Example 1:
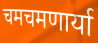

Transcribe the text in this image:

चमचमणार्या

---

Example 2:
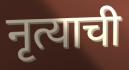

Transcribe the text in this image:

नृत्याची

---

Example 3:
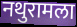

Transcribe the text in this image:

नथुरामला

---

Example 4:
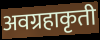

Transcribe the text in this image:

अवग्रहाकृती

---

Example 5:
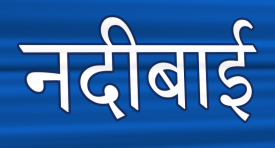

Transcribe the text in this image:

नदीबाई